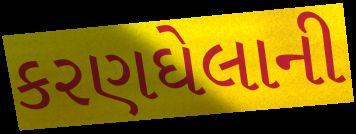
કરણઘેલાની